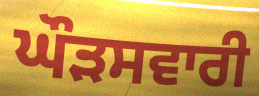
ਘੌੜਸਵਾਰੀ